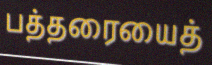
பத்தரையைத்